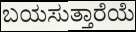
ಬಯಸುತ್ತಾರೆಯೆ